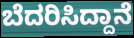
ಬೆದರಿಸಿದ್ದಾನೆ